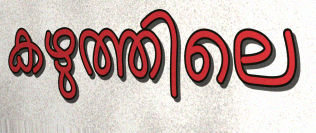
കഴുത്തിലെ